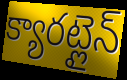
క్యారట్లైన్